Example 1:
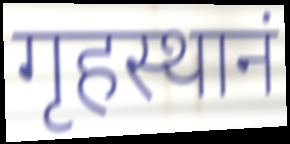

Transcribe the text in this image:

गृहस्थानं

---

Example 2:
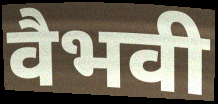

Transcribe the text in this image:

वैभवी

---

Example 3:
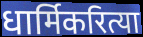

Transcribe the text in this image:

धार्मिकरित्या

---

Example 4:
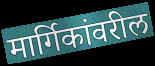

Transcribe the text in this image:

मार्गिकांवरील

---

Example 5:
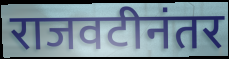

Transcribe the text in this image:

राजवटीनंतर